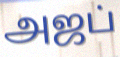
அஜப்